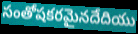
సంతోషకరమైనదేదియు